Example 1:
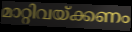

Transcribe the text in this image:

മാറ്റിവയ്ക്കണം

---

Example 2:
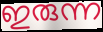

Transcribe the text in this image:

ഇരുന്ന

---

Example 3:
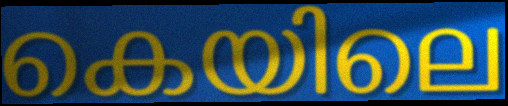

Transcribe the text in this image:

കെയിലെ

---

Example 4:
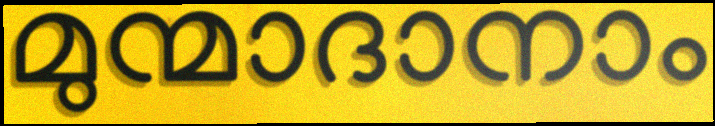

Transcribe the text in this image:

മുന്മാദാനാം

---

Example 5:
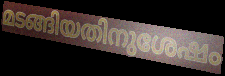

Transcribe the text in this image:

മടങ്ങിയതിനുശേഷം